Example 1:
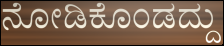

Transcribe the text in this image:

ನೋಡಿಕೊಂಡದ್ದು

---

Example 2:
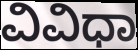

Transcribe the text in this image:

ವಿವಿಧಾ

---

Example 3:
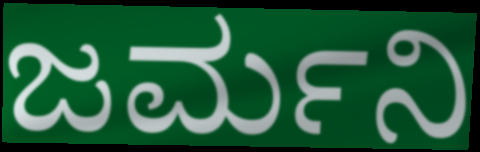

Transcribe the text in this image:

ಜರ್ಮನಿ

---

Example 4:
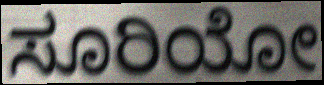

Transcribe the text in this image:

ಸೂರಿಯೋ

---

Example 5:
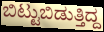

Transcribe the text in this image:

ಬಿಟ್ಟುಬಿಡುತ್ತಿದ್ದ